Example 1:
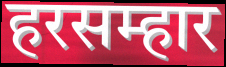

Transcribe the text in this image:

हरसम्हार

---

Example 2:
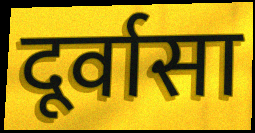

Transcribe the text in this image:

दूर्वासा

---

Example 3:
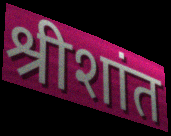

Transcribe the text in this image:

श्रीशांत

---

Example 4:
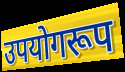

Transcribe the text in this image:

उपयोगरूप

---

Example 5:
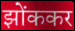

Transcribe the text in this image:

झोंककर